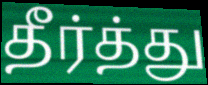
தீர்த்து